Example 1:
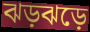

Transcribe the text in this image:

ঝড়ঝড়ে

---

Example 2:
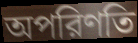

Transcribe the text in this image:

অপরিণতি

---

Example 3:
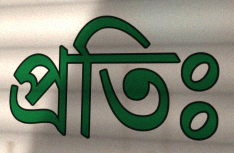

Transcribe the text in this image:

প্রতিঃ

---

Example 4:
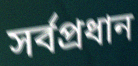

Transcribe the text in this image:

সর্বপ্রধান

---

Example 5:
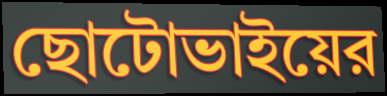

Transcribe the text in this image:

ছোটোভাইয়ের